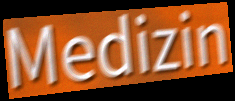
Medizin